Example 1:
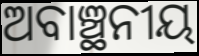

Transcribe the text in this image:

ଅବାଞ୍ଛନୀୟ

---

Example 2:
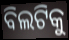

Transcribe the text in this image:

ବିଲଟିକୁ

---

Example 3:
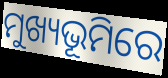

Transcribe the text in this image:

ମୁଖ୍ୟଭୂମିରେ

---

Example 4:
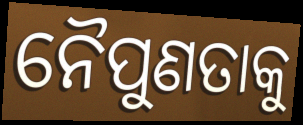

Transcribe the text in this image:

ନୈପୁଣତାକୁ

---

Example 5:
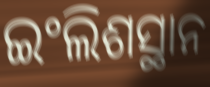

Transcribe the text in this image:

ଇଂଲିଶସ୍ଥାନ